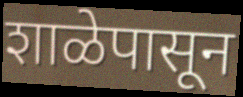
शाळेपासून